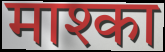
माश्का